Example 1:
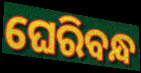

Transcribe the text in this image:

ଘେରିବନ୍ଧ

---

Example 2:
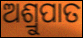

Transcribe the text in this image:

ଅଶ୍ରୁପାତ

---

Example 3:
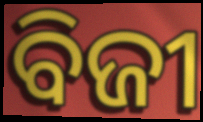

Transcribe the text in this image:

ବିଜୀ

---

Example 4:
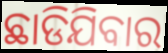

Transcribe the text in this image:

ଛାଡିଯିବାର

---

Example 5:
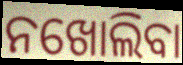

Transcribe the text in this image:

ନଖୋଲିବା